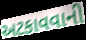
અટકાવવાની